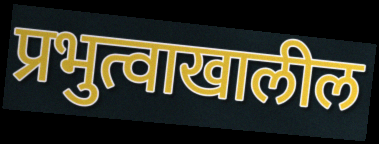
प्रभुत्वाखालील